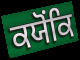
ਕਯੋਂਕਿ